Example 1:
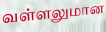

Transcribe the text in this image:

வள்ளலுமான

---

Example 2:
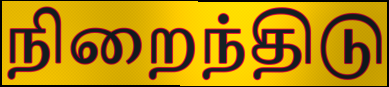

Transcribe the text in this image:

நிறைந்திடு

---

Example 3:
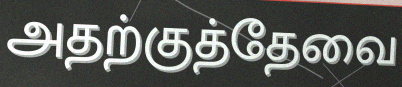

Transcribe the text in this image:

அதற்குத்தேவை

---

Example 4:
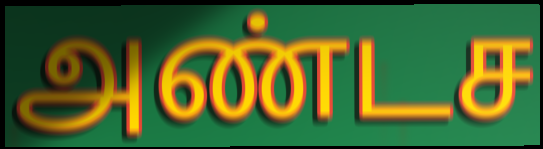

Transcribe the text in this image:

அண்டச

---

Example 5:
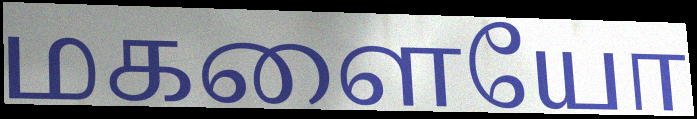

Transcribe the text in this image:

மகளையோ